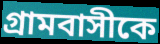
গ্রামবাসীকে